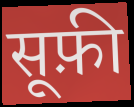
सूफ़ी